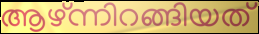
ആഴ്ന്നിറങ്ങിയത്